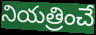
నియత్రించే